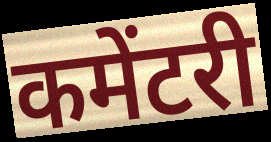
कमेंटरी